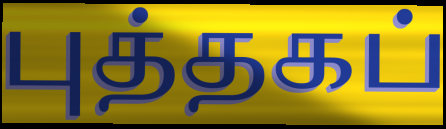
புத்தகப்